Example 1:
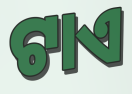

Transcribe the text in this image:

ଟାଏ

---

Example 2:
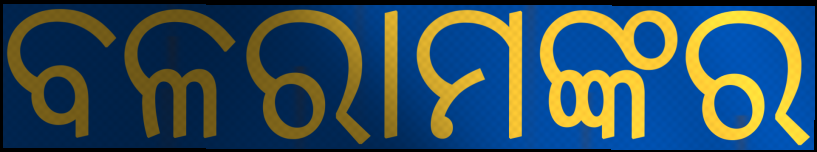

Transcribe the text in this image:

ବଳରାମଙ୍କର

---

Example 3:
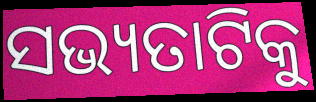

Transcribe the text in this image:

ସଭ୍ୟତାଟିକୁ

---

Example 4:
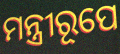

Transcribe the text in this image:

ମନ୍ତ୍ରୀରୂପେ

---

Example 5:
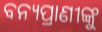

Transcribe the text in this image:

ବନ୍ୟପ୍ରାଣୀଙ୍କୁ